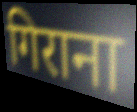
गिराना